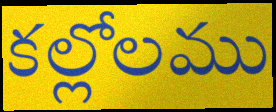
కల్లోలము